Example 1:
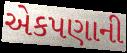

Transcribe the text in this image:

એકપણાની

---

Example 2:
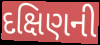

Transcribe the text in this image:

દક્ષિણની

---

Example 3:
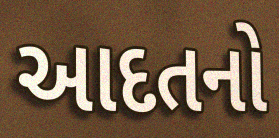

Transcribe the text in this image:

આદતનો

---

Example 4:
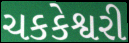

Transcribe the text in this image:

ચકકેશ્વરી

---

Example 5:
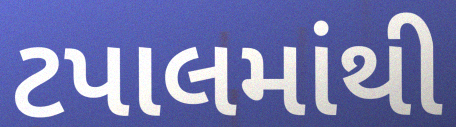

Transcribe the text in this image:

ટપાલમાંથી